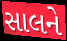
સાલને